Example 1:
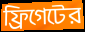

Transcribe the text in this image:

ফ্রিগেটের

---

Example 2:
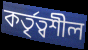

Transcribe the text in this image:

কর্তৃত্বশীল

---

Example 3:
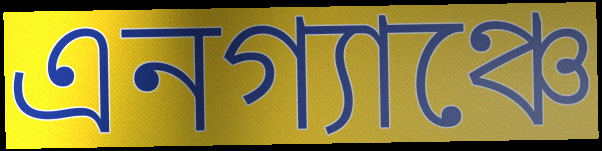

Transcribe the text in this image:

এনগ্যাঞ্চে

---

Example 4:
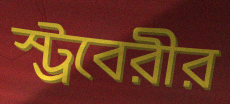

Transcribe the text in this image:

স্ট্রবেরীর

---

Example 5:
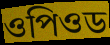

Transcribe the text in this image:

ওপিওড